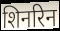
शिनरिन